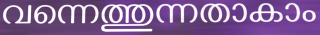
വന്നെത്തുന്നതാകാം